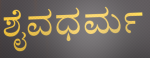
ಶೈವಧರ್ಮ